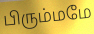
பிரும்மமே